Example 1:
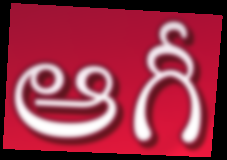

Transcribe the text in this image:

ఆగీ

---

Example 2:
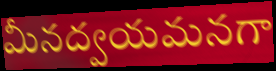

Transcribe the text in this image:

మీనద్వయమనగా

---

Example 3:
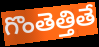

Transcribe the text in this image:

గొంతెత్తితే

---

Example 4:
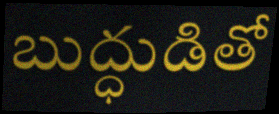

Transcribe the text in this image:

బుద్ధుడితో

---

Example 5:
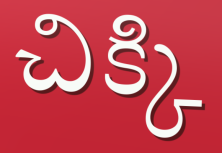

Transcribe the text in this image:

చిక్కి